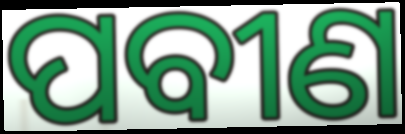
ପବୀଣ